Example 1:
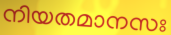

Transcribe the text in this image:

നിയതമാനസഃ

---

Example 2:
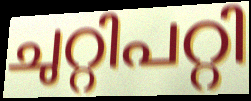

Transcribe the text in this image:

ചുറ്റിപറ്റി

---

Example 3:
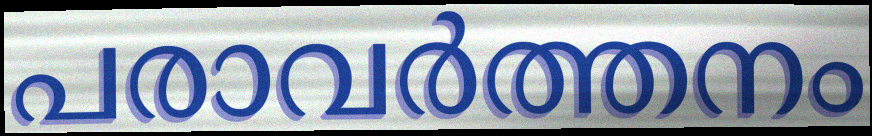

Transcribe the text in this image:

പരാവർത്തനം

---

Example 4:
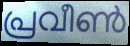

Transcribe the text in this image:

പ്രവീൺ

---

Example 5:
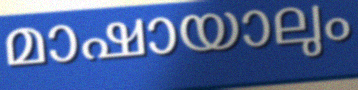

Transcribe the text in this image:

മാഷായാലും